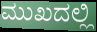
ಮುಖದಲ್ಲಿ